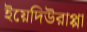
ইয়েদিউরাপ্পা